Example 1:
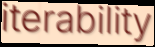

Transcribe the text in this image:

iterability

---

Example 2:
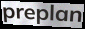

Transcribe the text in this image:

preplan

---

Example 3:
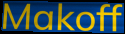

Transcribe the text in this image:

Makoff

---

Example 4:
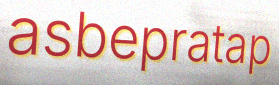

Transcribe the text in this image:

asbepratap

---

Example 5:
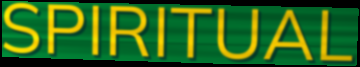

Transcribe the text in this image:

SPIRITUAL